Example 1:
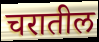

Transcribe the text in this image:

चरातील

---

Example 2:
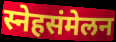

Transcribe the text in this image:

स्नेहसंमेलन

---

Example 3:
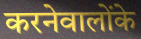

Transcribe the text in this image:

करनेवालोंके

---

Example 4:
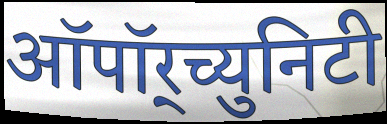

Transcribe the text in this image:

ऑपॉर्च्युनिटी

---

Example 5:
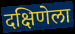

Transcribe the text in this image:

दक्षिणेला